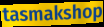
tasmakshop